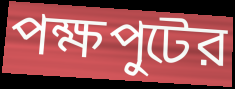
পক্ষপুটের